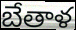
బేతాళ